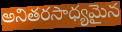
అనితరసాధ్యమైన